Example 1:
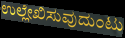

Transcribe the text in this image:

ಉಲ್ಲೇಖಿಸುವುದುಂಟು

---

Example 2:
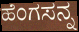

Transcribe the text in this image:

ಹೆಂಗಸನ್ನ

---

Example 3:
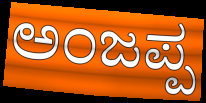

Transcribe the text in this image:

ಅಂಜಪ್ಪ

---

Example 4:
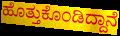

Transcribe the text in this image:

ಹೊತ್ತುಕೊಂಡಿದ್ದಾನೆ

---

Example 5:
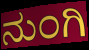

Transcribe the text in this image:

ನುಂಗಿ